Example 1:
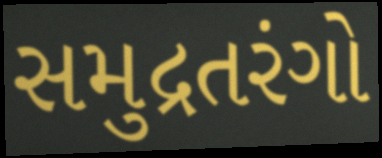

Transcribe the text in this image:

સમુદ્રતરંગો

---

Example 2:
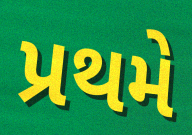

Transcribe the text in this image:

પ્રથમે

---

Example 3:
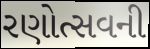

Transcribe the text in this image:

રણોત્સવની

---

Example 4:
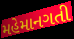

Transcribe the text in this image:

મહેમાનગતી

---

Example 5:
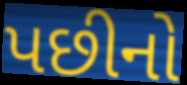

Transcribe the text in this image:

પછીનો